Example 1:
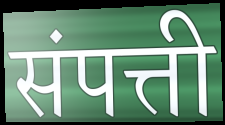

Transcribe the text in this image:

संपत्ती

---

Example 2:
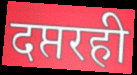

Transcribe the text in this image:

दप्तरही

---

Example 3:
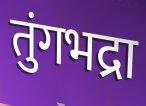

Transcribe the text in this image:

तुंगभद्रा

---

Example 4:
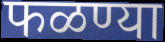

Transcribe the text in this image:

फळण्या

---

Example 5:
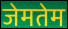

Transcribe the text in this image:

जेमतेम